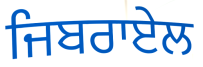
ਜਿਬਰਾਏਲ